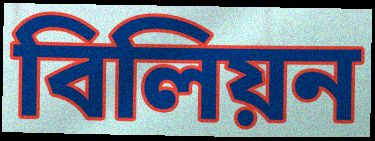
বিলিয়ন